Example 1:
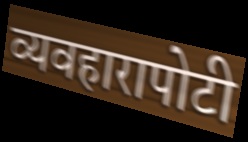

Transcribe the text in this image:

व्यवहारापोटी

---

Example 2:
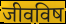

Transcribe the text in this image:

जीवविष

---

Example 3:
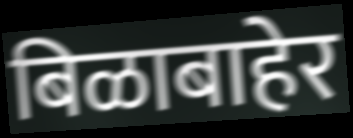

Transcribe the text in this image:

बिळाबाहेर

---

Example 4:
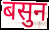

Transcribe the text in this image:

बसुन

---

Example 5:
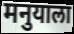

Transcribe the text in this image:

मनुयाला